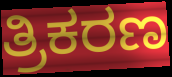
ತ್ರಿಕರಣ